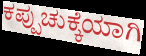
ಕಪ್ಪುಚುಕ್ಕೆಯಾಗಿ